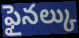
ఫైనల్కు